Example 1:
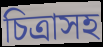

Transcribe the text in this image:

চিত্রাসহ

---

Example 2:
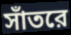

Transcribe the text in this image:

সাঁতরে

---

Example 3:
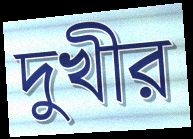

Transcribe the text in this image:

দুখীর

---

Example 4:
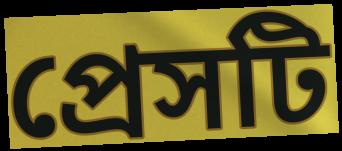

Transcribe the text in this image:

প্রেসটি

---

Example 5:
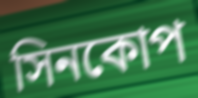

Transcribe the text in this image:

সিনকোপ